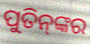
ପୁତିନ୍‌ଙ୍କର